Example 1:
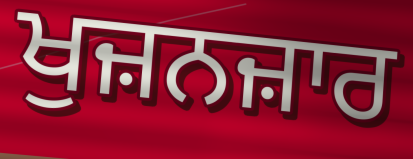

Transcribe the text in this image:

ਖੁਜ਼ਨਜ਼ਾਰ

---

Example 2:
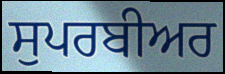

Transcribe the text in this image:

ਸੁਪਰਬੀਅਰ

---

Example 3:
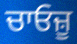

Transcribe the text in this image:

ਚਾਓਜ਼ੂ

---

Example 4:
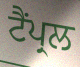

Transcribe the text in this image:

ਟੈਂਪ੍ਰਲ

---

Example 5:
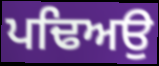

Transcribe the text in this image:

ਪਢਿਅਉ